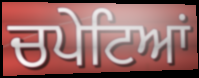
ਚਪੇਟਿਆਂ